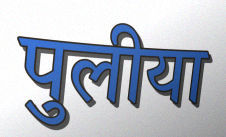
पुलीया